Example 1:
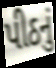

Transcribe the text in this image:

પીઠનું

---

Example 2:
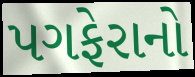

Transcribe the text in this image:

પગફેરાનો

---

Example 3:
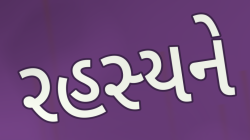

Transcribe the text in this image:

રહસ્યને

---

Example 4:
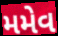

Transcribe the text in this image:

મમેવ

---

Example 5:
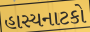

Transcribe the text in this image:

હાસ્યનાટકો